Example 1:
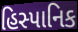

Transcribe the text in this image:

હિસ્પાનિક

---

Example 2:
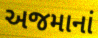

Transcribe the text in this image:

અજમાનાં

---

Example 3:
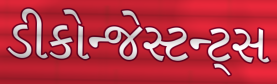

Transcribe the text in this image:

ડીકોન્જેસ્ટન્ટ્સ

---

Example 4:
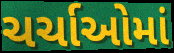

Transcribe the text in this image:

ચર્ચાઓમાં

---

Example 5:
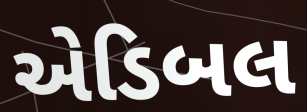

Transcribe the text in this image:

એડિબલ